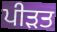
ਪੀਡ਼ਤ